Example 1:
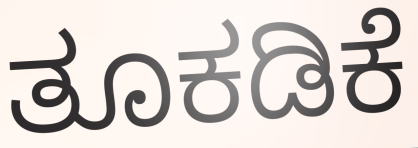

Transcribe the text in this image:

ತೂಕಡಿಕೆ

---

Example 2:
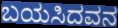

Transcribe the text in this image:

ಬಯಸಿದವನ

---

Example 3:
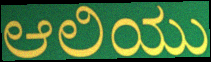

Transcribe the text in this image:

ಆಲಿಯು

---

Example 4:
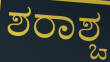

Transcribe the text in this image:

ಶರಾಶ್ಚ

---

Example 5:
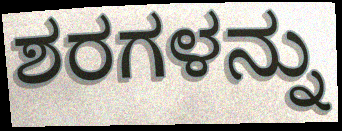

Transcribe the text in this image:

ಶರಗಳನ್ನು